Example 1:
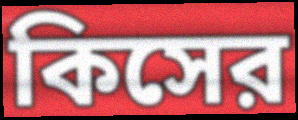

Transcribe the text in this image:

কিসের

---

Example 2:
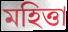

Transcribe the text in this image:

মহিত্তা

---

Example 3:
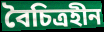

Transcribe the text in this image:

বৈচিত্রহীন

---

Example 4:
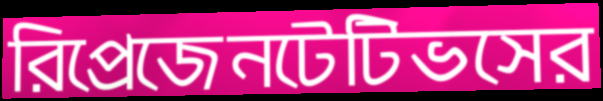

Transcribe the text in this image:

রিপ্রেজেনটেটিভসের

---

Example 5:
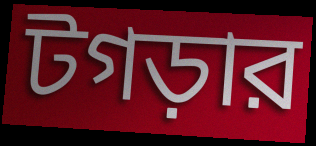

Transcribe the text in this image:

টগড়ার